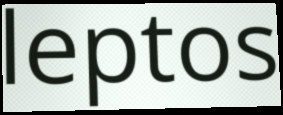
leptos